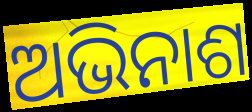
ଅଭିନାଶ